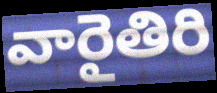
వారైతిరి